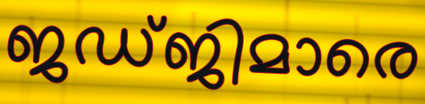
ജഡ്ജിമാരെ